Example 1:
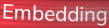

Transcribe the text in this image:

Embedding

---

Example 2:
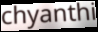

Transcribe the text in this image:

chyanthi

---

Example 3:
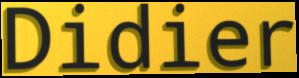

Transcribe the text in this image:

Didier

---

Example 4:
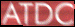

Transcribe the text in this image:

ATDC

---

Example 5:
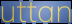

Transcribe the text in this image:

uttan